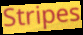
Stripes